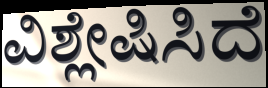
ವಿಶ್ಲೇಷಿಸಿದೆ